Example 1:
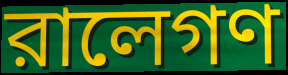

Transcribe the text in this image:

রালেগণ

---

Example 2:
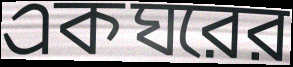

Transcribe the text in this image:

একঘরের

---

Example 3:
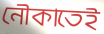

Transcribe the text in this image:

নৌকাতেই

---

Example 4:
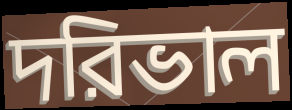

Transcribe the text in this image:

দরিভাল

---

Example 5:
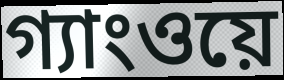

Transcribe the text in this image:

গ্যাংওয়ে